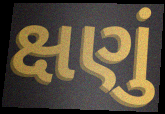
ક્ષણું